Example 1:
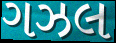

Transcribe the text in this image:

ગઝલ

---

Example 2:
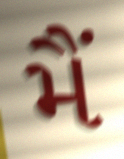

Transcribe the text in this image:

મૈં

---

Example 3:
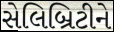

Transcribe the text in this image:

સેલિબ્રિટીને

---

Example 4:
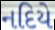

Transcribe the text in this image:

નદિયે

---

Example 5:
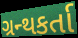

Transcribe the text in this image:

ગ્રન્થકર્તા